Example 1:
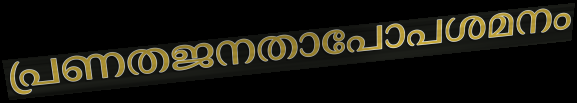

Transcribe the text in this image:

പ്രണതജനതാപോപശമനം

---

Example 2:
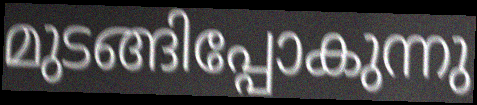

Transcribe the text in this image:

മുടങ്ങിപ്പോകുന്നു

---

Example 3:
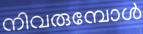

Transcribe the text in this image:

നിവരുമ്പോൾ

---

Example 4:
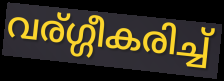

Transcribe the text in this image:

വര്ഗ്ഗീകരിച്ച്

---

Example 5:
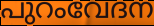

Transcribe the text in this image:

പുറംവേദന